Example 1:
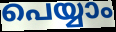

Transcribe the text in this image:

പെയ്യാം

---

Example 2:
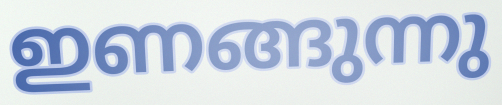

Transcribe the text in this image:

ഇണങ്ങുന്നു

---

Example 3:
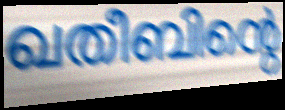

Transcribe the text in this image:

ഖതീബിന്റെ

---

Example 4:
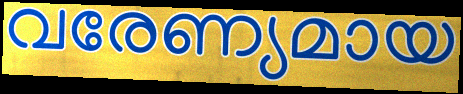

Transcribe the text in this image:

വരേണ്യമായ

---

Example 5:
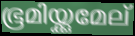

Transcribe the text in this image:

ഭൂമിയ്ക്കുമേല്